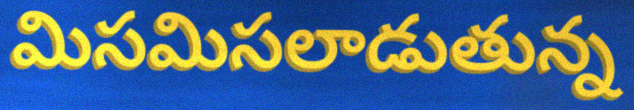
మిసమిసలాడుతున్న